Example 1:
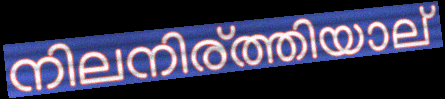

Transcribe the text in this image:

നിലനിര്ത്തിയാല്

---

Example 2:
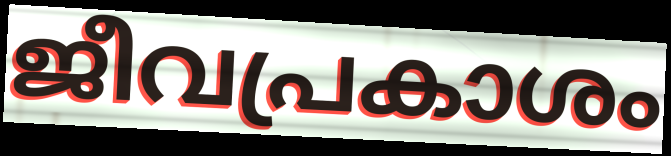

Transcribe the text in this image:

ജീവപ്രകാശം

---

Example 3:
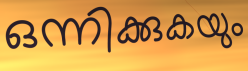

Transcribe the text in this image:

ഒന്നിക്കുകയും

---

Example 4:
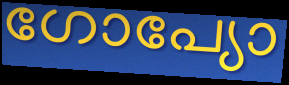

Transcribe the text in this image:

ഗോപ്യോ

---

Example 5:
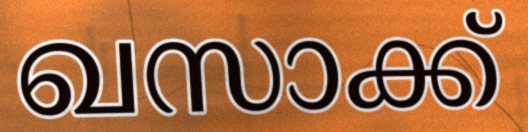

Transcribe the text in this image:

ഖസാക്ക്